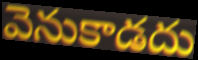
వెనుకాడదు